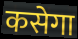
कसेगा